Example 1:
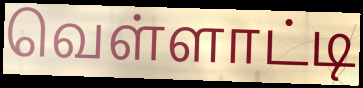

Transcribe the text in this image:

வெள்ளாட்டி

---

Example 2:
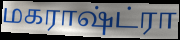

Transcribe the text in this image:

மகராஷ்ட்ரா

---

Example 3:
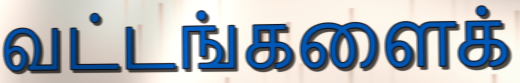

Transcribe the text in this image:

வட்டங்களைக்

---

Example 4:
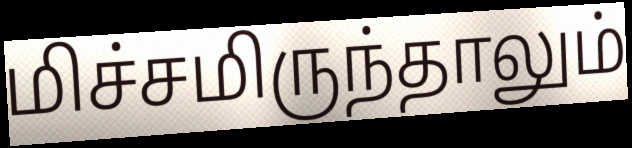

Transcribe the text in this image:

மிச்சமிருந்தாலும்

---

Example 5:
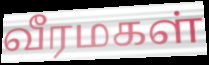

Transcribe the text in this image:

வீரமகள்